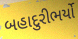
બહાદુરીભર્યો